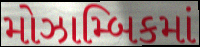
મોઝામ્બિકમાં